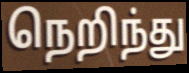
நெறிந்து